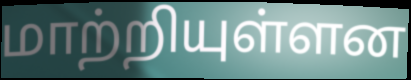
மாற்றியுள்ளன